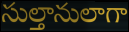
సుల్తానులాగా